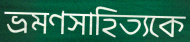
ভ্রমণসাহিত্যকে